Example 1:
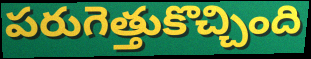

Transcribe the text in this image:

పరుగెత్తుకొచ్చింది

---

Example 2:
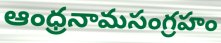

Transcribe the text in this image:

ఆంధ్రనామసంగ్రహం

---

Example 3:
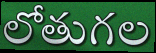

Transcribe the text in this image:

లోతుగల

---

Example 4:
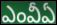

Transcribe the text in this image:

ఎంవీఏ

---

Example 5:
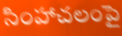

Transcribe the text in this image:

సింహాచలంపై